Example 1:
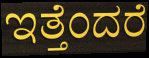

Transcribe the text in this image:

ಇತ್ತೆಂದರೆ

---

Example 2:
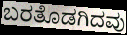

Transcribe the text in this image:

ಬರತೊಡಗಿದವು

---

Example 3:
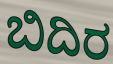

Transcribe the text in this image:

ಬಿದಿರ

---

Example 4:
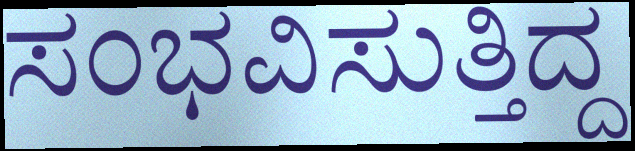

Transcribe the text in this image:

ಸಂಭವಿಸುತ್ತಿದ್ದ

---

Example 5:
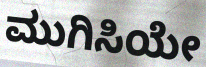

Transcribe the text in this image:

ಮುಗಿಸಿಯೇ